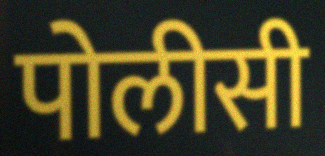
पोलीसी